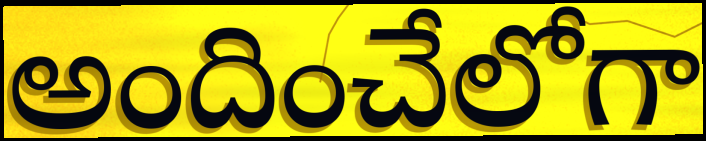
అందించేలోగా